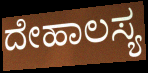
ದೇಹಾಲಸ್ಯ